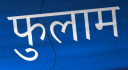
फुलाम